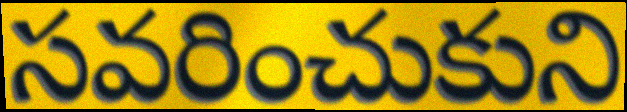
సవరించుకుని